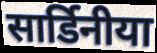
सार्डिनीया